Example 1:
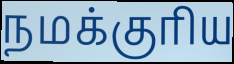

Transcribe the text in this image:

நமக்குரிய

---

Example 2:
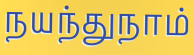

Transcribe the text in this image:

நயந்துநாம்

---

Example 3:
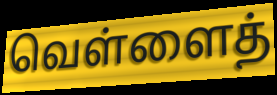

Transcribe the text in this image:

வெள்ளைத்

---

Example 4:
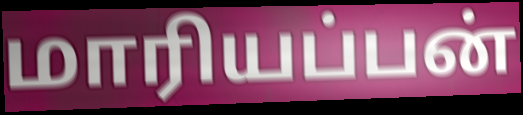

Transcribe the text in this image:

மாரியப்பன்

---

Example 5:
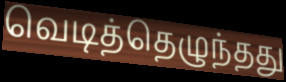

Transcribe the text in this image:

வெடித்தெழுந்தது